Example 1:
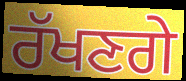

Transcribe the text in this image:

ਰੱਖਣਗੇ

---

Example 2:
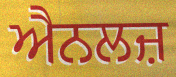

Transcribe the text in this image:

ਐਨਲਜ਼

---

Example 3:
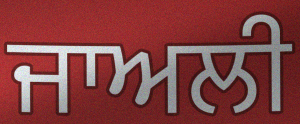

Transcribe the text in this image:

ਜਾਅਲੀ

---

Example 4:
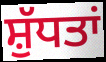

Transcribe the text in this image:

ਸ਼ੁੱਧਤਾਂ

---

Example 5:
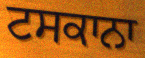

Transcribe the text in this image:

ਟਸਕਾਨਾ